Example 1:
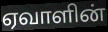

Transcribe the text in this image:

ஏவாளின்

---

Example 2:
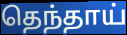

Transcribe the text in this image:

தெந்தாய்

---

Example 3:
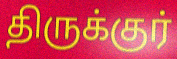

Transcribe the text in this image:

திருக்குர்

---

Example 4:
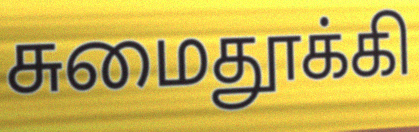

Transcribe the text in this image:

சுமைதூக்கி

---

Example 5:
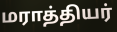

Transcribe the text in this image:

மராத்தியர்